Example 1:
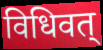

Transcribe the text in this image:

विधिवत्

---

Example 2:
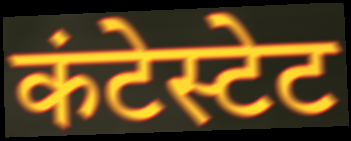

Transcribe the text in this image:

कंटेस्टेट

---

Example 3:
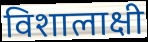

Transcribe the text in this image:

विशालाक्षी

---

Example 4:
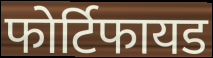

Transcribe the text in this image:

फोर्टिफायड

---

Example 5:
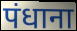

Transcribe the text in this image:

पंधाना